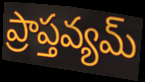
ప్రాప్తవ్యమ్